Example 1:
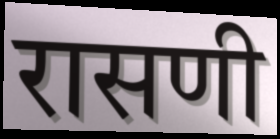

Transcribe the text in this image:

रासणी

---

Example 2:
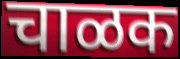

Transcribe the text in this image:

चाळक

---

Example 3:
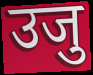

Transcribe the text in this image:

उजु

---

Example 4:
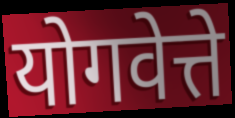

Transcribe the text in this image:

योगवेत्ते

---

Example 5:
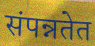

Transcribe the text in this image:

संपन्नतेत